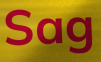
Sag